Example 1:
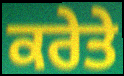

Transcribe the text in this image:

ਕਰੇਤੇ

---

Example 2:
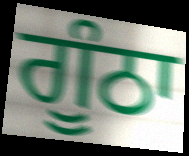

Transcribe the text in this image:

ਗੂੰਠਾ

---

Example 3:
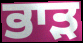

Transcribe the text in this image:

ਭਾੜ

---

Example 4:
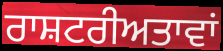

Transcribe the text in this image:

ਰਾਸ਼ਟਰੀਅਤਾਵਾਂ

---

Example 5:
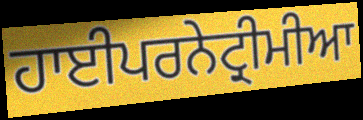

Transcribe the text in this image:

ਹਾਈਪਰਨੇਟ੍ਰੀਮੀਆ